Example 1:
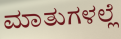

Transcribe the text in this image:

ಮಾತುಗಳಲ್ಲೆ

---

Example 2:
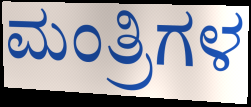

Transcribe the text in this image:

ಮಂತ್ರಿಗಳ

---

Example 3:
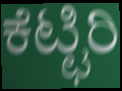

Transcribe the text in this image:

ಕೆಟ್ಟಿರಿ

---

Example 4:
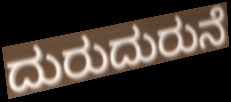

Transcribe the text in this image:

ದುರುದುರುನೆ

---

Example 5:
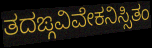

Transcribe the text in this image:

ತದಙ್ಗವಿವೇಕನಿಸ್ಸಿತಂ